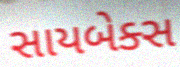
સાયબેક્સ